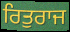
ਰਿਤੁਰਾਜ